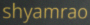
shyamrao